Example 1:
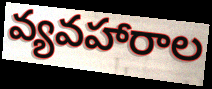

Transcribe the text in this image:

వ్యవహారాల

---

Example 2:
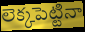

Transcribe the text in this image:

లెక్కపెట్టినా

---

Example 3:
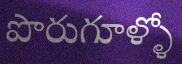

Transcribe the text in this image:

పొరుగూళ్ళో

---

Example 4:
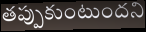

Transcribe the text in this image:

తప్పుకుంటుందని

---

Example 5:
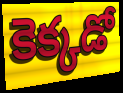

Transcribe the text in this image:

కెక్కడో